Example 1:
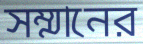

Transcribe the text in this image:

সম্মানের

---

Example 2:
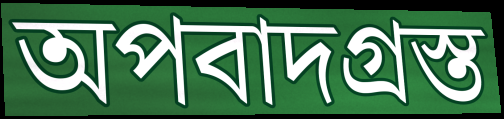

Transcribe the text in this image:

অপবাদগ্রস্ত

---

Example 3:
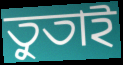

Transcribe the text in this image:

তুতাই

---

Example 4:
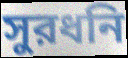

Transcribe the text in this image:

সুরধনি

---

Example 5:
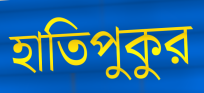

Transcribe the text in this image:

হাতিপুকুর